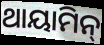
ଥାୟାମିନ୍